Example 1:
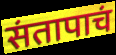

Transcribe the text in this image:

संतापाचं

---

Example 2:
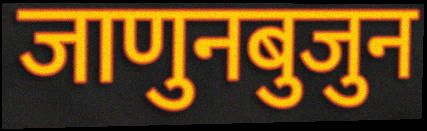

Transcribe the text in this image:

जाणुनबुजुन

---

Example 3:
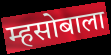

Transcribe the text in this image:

म्हसोबाला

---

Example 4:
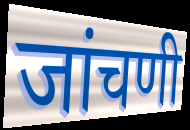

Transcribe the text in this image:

जांचणी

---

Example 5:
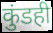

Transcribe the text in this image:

कुंडही